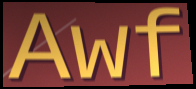
Awf